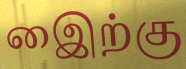
இைற்கு